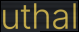
uthal